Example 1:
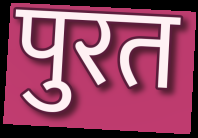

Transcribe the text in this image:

पुरत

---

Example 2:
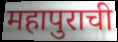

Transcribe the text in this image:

महापुराची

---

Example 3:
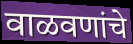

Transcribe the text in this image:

वाळवणांचे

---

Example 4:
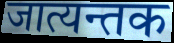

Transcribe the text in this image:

जात्यन्तक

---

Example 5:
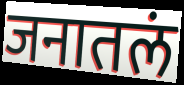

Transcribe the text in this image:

जनातलं